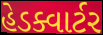
હેડક્વાર્ટર